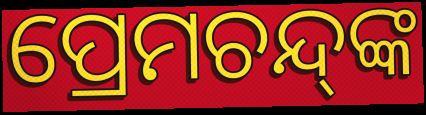
ପ୍ରେମଚନ୍ଦ୍‌ଙ୍କ